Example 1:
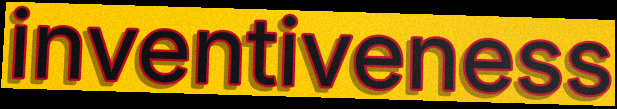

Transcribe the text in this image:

inventiveness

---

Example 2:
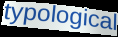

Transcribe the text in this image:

typological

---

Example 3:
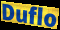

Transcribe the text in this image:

Duflo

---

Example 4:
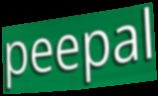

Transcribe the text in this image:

peepal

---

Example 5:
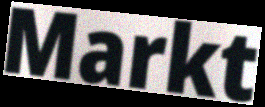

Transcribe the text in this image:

Markt